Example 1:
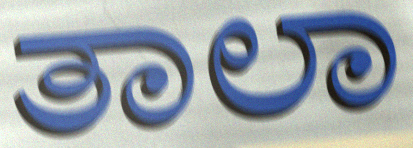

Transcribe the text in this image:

ತಾಲಾ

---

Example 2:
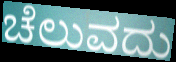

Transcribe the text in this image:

ಚೆಲುವದು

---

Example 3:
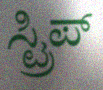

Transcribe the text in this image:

ಸ್ಟ್ರಿಪ್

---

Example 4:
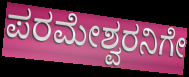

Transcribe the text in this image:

ಪರಮೇಶ್ವರನಿಗೇ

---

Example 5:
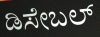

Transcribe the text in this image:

ಡಿಸೇಬಲ್